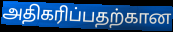
அதிகரிப்பதற்கான